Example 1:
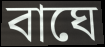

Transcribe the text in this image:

বাঘে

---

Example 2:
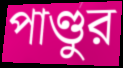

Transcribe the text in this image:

পাণ্ডুর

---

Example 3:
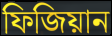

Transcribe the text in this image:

ফিজিয়ান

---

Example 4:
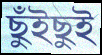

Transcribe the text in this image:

ছুঁইছুই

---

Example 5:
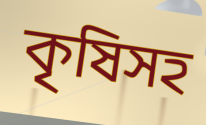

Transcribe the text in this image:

কৃষিসহ